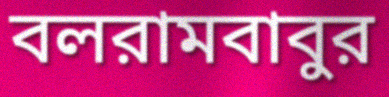
বলরামবাবুর